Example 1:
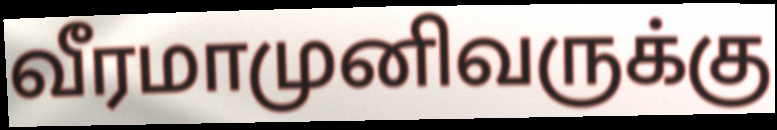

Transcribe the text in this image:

வீரமாமுனிவருக்கு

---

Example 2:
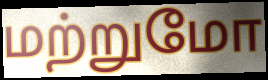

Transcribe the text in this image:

மற்றுமோ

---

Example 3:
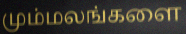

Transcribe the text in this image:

மும்மலங்களை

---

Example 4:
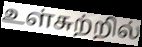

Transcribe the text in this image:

உள்சுற்றில்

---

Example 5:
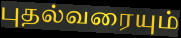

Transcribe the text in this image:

புதல்வரையும்